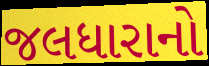
જલધારાનો